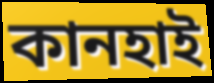
কানহাই